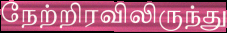
நேற்றிரவிலிருந்து